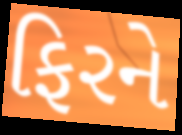
ફિરને